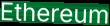
Ethereum